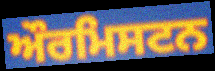
ਔਰਮਿਸਟਨ